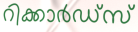
റിക്കാർഡ്സ്